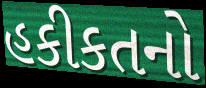
હકીકતનો